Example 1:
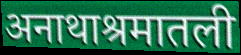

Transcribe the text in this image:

अनाथाश्रमातली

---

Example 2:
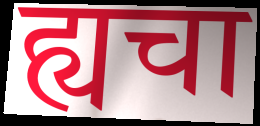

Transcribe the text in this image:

ह्यचा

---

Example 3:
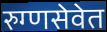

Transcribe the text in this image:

रुग्णसेवेत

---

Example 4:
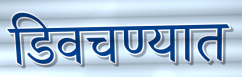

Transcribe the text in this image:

डिवचण्यात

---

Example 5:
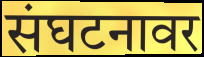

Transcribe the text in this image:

संघटनावर